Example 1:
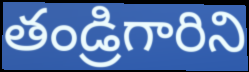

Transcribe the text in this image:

తండ్రిగారిని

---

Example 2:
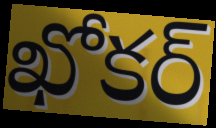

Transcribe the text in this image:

ఖోకర్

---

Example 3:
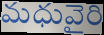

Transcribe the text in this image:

మధువైరి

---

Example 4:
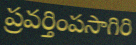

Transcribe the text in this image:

ప్రవర్తింపసాగిరి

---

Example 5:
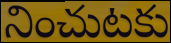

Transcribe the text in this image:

నించుటకు